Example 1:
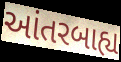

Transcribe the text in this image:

આંતરબાહ્ય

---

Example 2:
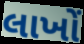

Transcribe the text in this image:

લાખોં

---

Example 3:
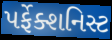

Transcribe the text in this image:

પર્ફેક્શનિસ્ટ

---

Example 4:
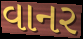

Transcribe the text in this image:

વાનર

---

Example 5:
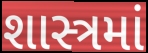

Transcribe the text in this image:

શાસ્ત્રમાં